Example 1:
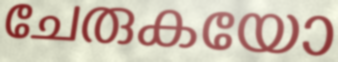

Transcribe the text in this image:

ചേരുകയോ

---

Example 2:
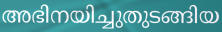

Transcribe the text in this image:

അഭിനയിച്ചുതുടങ്ങിയ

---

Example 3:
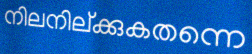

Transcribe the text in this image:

നിലനില്ക്കുകതന്നെ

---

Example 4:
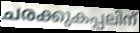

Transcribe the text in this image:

ചരക്കുകപ്പലിന്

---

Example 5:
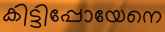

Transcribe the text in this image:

കിട്ടിപ്പോയേനെ